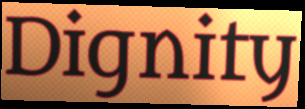
Dignity